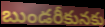
బుండరీకునకు